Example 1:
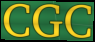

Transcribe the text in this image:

CGC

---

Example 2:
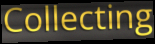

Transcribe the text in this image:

Collecting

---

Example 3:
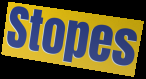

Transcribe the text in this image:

Stopes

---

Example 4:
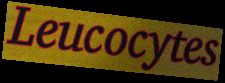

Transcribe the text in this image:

Leucocytes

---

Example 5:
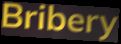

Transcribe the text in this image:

Bribery